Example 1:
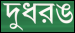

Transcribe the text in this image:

দুধরঙ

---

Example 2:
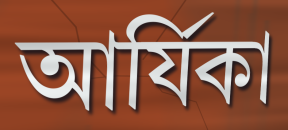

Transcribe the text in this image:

আর্যিকা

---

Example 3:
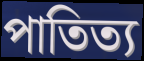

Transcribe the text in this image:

পাতিত্য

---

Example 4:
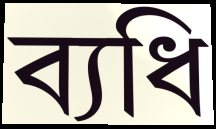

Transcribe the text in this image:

ব্যধি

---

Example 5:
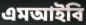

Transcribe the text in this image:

এমআইবি